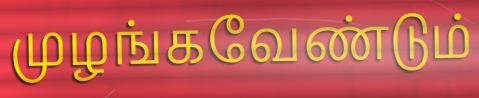
முழங்கவேண்டும்